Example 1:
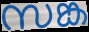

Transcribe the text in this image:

സങ്ക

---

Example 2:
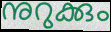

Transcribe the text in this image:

നുറുക്കും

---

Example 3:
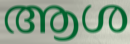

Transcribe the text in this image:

ആശ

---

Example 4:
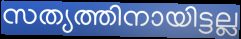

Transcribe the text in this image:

സത്യത്തിനായിട്ടല്ല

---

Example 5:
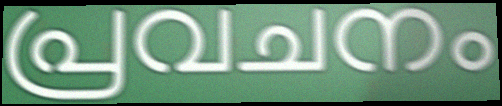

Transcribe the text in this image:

പ്രവചനം